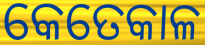
କେତେକାଳ